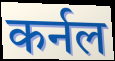
कर्नल